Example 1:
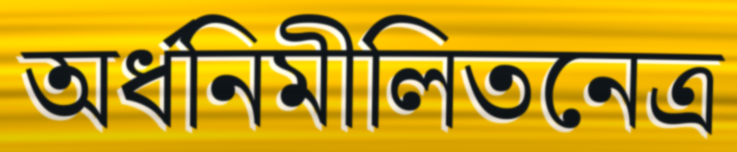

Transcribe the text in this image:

অর্ধনিমীলিতনেত্র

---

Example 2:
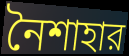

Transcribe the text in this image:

নৈশাহার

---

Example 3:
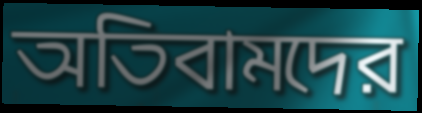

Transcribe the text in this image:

অতিবামদের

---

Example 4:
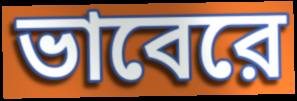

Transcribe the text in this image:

ভাবেরে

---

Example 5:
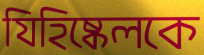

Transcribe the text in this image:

যিহিষ্কেলকে